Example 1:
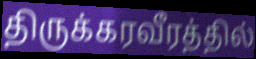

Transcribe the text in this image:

திருக்கரவீரத்தில்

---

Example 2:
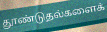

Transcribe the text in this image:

தூண்டுதல்களைக்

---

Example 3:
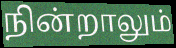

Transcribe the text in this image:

நின்றாலும்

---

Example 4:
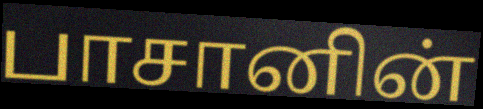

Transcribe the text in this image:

பாசானின்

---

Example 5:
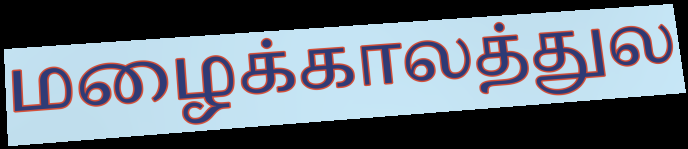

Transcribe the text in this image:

மழைக்காலத்துல